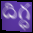
దిగ్ధ